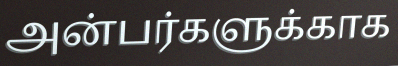
அன்பர்களுக்காக